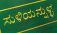
ಸುಳಿಯನ್ನುಳ್ಳ